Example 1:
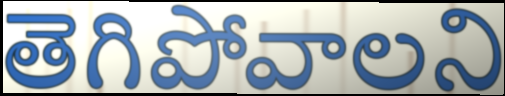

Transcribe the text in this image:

తెగిపోవాలని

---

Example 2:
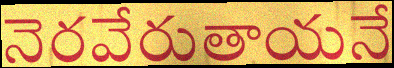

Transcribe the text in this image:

నెరవేరుతాయనే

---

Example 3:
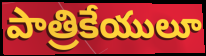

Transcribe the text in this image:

పాత్రికేయులూ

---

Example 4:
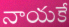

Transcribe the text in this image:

నాయకే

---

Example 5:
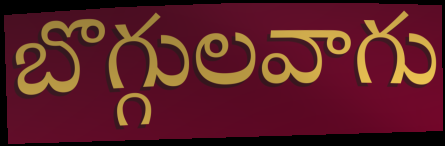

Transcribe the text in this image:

బొగ్గులవాగు